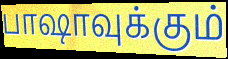
பாஷாவுக்கும்